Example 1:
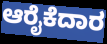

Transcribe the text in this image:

ಆರೈಕೆದಾರ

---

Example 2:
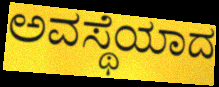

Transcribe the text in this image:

ಅವಸ್ಥೆಯಾದ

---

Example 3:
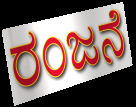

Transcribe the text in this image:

ರಂಜನೆ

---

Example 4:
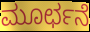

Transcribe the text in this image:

ಮೂರ್ಛನೆ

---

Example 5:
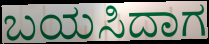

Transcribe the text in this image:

ಬಯಸಿದಾಗ